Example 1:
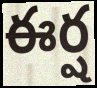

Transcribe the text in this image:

ఈర్ష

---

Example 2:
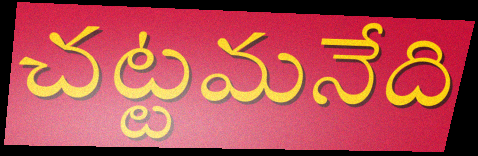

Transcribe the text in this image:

చట్టమనేది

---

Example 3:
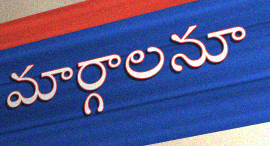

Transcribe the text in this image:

మార్గాలనూ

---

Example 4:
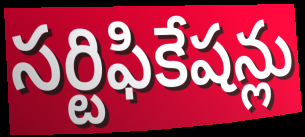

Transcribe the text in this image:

సర్టిఫికేషన్లు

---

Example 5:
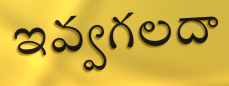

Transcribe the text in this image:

ఇవ్వగలదా